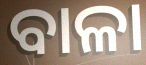
ବାଳା